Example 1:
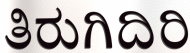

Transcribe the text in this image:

ತಿರುಗಿದಿರಿ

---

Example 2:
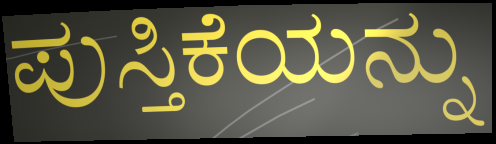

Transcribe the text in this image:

ಪುಸ್ತಿಕೆಯನ್ನು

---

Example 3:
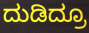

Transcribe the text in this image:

ದುಡಿದ್ರೂ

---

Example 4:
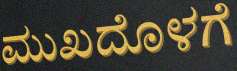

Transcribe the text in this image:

ಮುಖದೊಳಗೆ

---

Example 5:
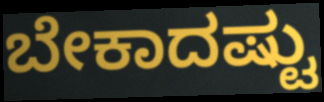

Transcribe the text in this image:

ಬೇಕಾದಷ್ಟು